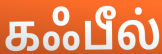
கஃபீல்